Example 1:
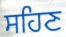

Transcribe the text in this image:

ਸਹਿਣ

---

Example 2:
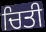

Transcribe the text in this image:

ਚਿਤੀ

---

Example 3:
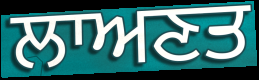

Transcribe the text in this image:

ਲਾਅਣਤ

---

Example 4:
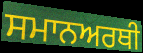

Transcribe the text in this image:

ਸਮਾਨਅਰਥੀ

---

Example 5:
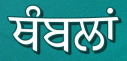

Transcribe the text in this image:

ਥੰਬਲਾਂ